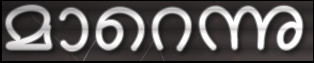
മാറെന്നു